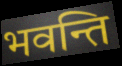
भवन्ति